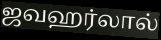
ஜவஹர்லால்